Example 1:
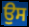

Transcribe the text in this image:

ਉਸ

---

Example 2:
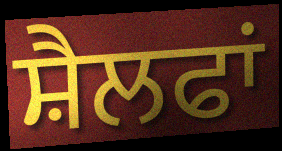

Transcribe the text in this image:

ਸ਼ੈਲਫਾਂ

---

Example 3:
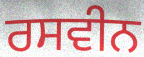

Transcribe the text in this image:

ਰਸਵੀਨ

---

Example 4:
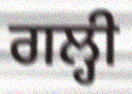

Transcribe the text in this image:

ਗਲ੍ਹੀ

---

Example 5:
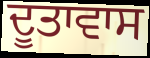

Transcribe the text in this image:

ਦੂਤਾਵਾਸ